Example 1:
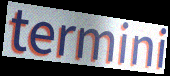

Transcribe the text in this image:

termini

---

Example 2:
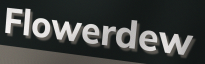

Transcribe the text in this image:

Flowerdew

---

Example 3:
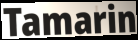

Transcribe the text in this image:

Tamarin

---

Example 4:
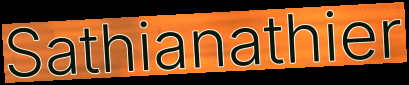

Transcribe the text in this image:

Sathianathier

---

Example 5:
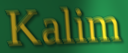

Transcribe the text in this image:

Kalim